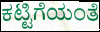
ಕಟ್ಟಿಗೆಯಂತೆ